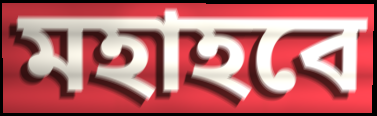
মহাহবে